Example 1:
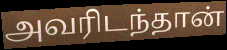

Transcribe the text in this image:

அவரிடந்தான்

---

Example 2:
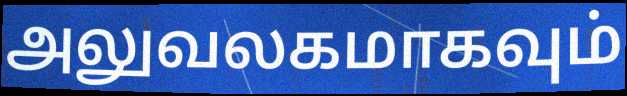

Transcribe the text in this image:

அலுவலகமாகவும்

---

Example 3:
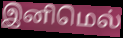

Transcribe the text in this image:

இனிமெல்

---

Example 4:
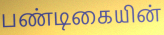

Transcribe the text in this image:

பண்டிகையின்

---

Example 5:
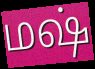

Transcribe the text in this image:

மஷ்